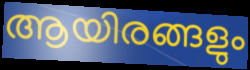
ആയിരങ്ങളും